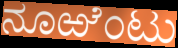
ನೂಱೆಂಟು